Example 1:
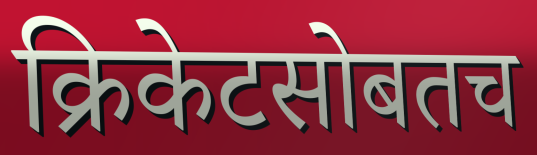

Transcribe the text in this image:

क्रिकेटसोबतच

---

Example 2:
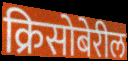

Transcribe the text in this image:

क्रिसोबेरील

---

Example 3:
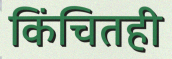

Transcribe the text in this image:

किंचितही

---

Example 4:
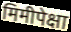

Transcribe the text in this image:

मिमीपेक्षा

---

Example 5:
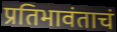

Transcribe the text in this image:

प्रतिभावंताचं